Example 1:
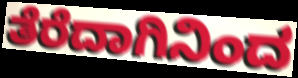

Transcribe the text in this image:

ತೆರೆದಾಗಿನಿಂದ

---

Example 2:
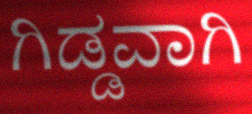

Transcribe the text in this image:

ಗಿಡ್ಡವಾಗಿ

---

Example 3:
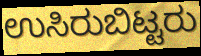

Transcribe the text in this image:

ಉಸಿರುಬಿಟ್ಟರು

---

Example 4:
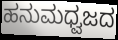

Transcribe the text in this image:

ಹನುಮಧ್ವಜದ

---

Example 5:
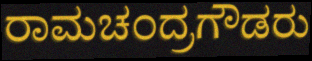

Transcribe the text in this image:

ರಾಮಚಂದ್ರಗೌಡರು